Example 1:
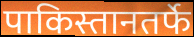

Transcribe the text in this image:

पाकिस्तानतर्फे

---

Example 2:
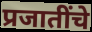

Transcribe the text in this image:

प्रजातींचे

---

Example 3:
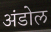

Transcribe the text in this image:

अंडोल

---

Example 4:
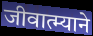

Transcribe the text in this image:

जीवात्म्याने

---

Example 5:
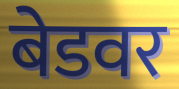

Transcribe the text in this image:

बेडवर